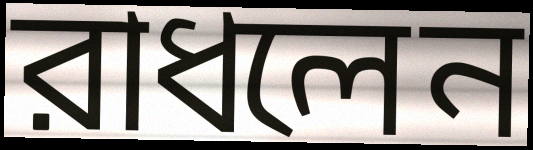
রাধলেন